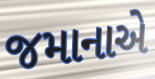
જમાનાએ